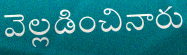
వెల్లడించినారు